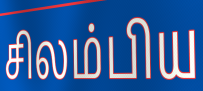
சிலம்பிய